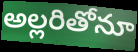
అల్లరితోనూ